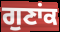
ਗੁਣਾਂਕ